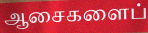
ஆசைகளைப்